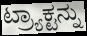
ಟ್ರ್ಯಾಕ್ಟನ್ನು